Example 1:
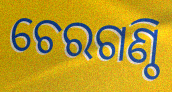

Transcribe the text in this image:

ଚେରଗଣ୍ଠି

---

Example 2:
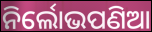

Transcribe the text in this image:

ନିର୍ଲୋଭପଣିଆ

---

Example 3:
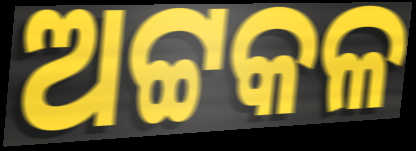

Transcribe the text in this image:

ଅଟ୍ଟକଳ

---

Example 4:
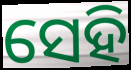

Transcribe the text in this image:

ସେହି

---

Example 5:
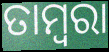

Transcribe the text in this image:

ତାମ୍ବରା